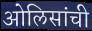
ओलिसांची